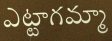
ఎట్టాగమ్మా